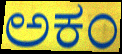
ಅಕಂ